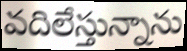
వదిలేస్తున్నాను